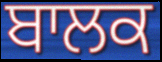
ਬਾਲਕ